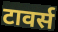
टावर्स